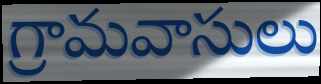
గ్రామవాసులు